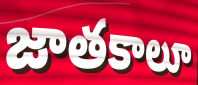
జాతకాలూ